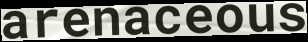
arenaceous